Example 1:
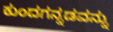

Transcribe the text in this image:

ಕುಂದಗನ್ನಡವನ್ನು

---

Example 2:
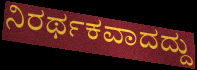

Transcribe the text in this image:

ನಿರರ್ಥಕವಾದದ್ದು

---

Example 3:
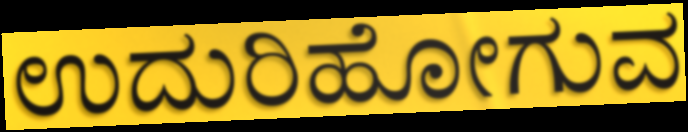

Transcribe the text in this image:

ಉದುರಿಹೋಗುವ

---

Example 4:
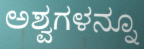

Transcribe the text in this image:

ಅಶ್ವಗಳನ್ನೂ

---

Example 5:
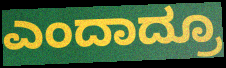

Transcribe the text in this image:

ಎಂದಾದ್ರೂ